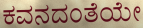
ಕವನದಂತೆಯೇ